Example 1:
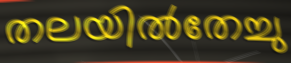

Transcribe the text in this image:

തലയിൽതേച്ചു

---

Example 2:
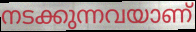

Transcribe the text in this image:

നടക്കുന്നവയാണ്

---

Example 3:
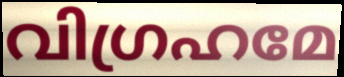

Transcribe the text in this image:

വിഗ്രഹമേ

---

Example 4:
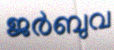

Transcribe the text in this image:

ജർബുവ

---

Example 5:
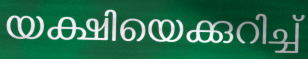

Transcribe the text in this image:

യക്ഷിയെക്കുറിച്ച്